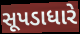
સૂપડાધારે